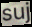
suj